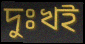
দুঃখই